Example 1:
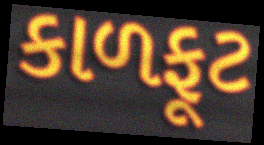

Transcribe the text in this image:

કાળફૂટ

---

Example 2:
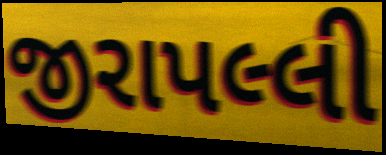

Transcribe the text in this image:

જીરાપલ્લી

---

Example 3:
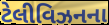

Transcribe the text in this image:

ટેલીવિઝનના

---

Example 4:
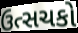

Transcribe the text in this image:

ઉત્સચકો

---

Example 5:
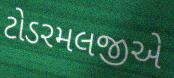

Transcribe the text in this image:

ટોડરમલજીએ